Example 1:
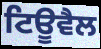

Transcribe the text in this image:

ਟਿਊਵੈਲ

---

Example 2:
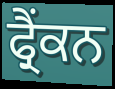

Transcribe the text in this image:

ਫ੍ਰੈਂਕਨ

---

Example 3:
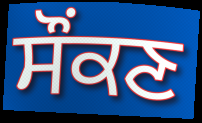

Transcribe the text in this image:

ਸੌਂਕਣ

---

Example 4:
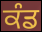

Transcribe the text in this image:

ਕੰਡ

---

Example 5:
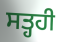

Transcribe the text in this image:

ਸਤ੍ਹਹੀ